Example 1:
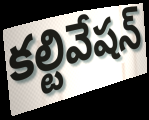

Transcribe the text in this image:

కల్టివేషన్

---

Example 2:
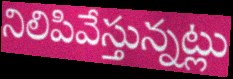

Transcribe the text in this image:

నిలిపివేస్తున్నట్లు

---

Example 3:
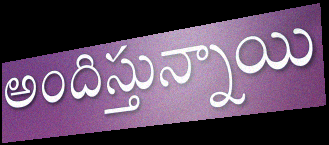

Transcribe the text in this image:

అందిస్తున్నాయి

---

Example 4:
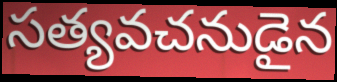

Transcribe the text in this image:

సత్యవచనుడైన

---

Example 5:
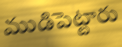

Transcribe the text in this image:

ముడిపెట్టారు